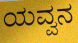
ಯವ್ವನ